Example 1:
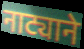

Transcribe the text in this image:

नाट्याने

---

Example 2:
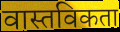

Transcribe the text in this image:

वास्तविकता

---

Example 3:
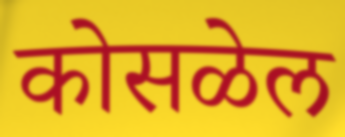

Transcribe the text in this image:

कोसळेल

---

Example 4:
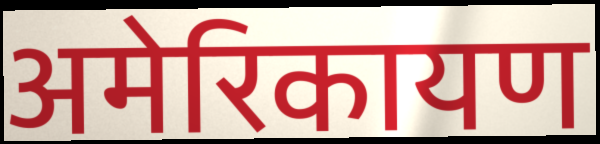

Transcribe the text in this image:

अमेरिकायण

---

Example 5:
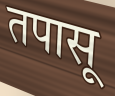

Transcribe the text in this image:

तपासू